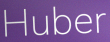
Huber